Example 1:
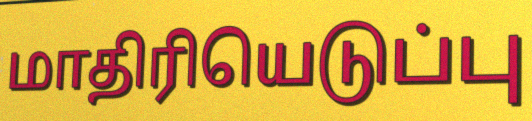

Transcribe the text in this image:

மாதிரியெடுப்பு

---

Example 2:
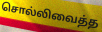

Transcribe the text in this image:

சொல்லிவைத்த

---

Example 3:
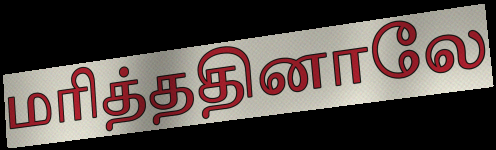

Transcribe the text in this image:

மரித்ததினாலே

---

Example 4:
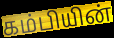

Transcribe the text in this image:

கம்பியின்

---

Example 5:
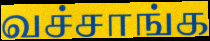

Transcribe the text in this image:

வச்சாங்க